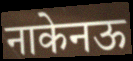
नाकेनऊ